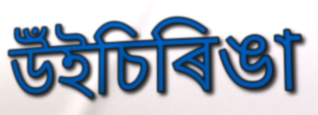
উঁইচিৰিঙা